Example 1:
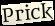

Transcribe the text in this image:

Prick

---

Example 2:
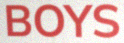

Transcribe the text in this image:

BOYS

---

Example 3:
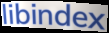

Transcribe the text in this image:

libindex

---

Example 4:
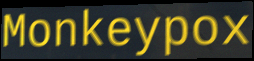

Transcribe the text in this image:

Monkeypox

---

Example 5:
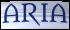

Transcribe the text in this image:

ARIA